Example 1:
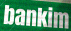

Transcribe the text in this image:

bankim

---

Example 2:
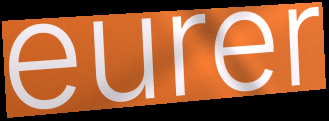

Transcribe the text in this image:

eurer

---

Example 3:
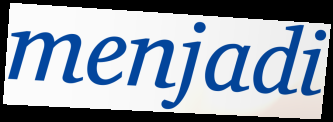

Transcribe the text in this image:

menjadi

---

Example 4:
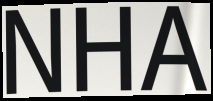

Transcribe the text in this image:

NHA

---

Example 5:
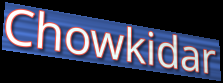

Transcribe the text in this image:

Chowkidar